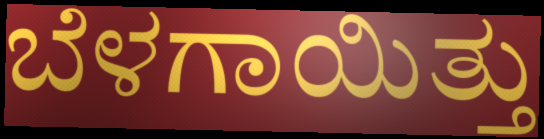
ಬೆಳಗಾಯಿತ್ತು